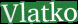
Vlatko